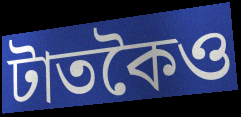
টাতকৈও